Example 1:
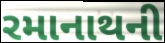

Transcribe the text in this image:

રમાનાથની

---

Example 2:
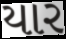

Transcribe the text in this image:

યાર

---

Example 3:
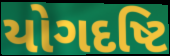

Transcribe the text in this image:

યોગદષ્ટિ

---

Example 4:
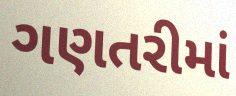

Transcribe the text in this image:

ગણતરીમાં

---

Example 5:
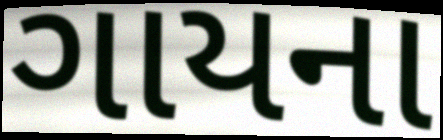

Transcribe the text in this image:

ગાયના